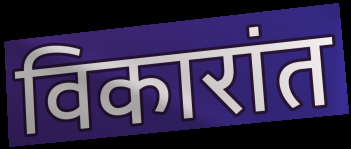
विकारांत